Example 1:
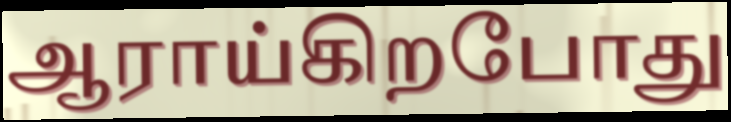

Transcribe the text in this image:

ஆராய்கிறபோது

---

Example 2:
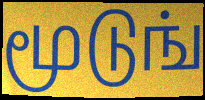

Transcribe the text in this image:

மூடுங்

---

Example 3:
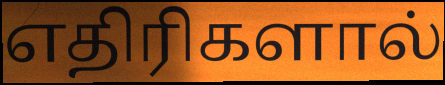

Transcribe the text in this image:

எதிரிகளால்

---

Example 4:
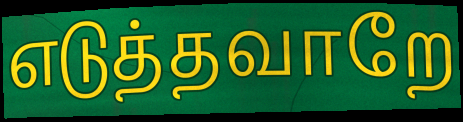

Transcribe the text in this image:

எடுத்தவாறே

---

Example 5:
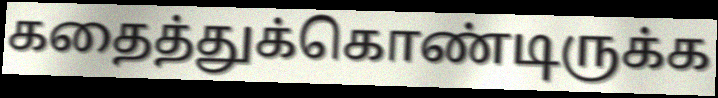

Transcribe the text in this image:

கதைத்துக்கொண்டிருக்க